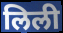
लिली